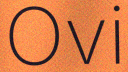
Ovi